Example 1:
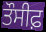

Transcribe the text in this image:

ਤੌਸੀਫ਼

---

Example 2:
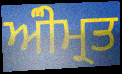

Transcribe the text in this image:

ਅੰੀਮ੍ਰਤ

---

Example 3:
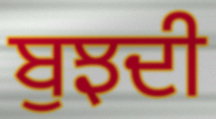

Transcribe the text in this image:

ਬੁਝਦੀ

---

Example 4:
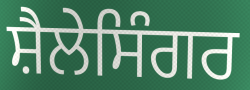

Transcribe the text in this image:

ਸ਼ੈਲੇਸਿੰਗਰ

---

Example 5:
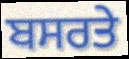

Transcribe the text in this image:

ਬਸਰਤੇ